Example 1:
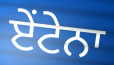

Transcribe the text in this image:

ਏਂਟੇਨਾ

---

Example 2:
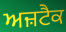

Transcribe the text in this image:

ਅਜ਼ਟੈਕ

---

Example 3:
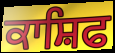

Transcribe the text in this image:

ਕਾਸ਼ਿਫ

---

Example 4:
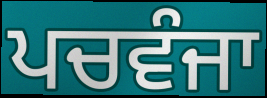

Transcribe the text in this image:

ਪਚਵੰਜਾ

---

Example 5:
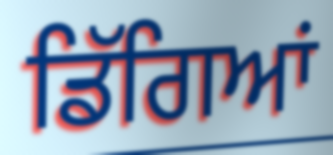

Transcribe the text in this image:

ਡਿੱਗਿਆਂ